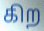
கிற